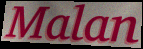
Malan